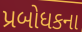
પ્રબોધકના